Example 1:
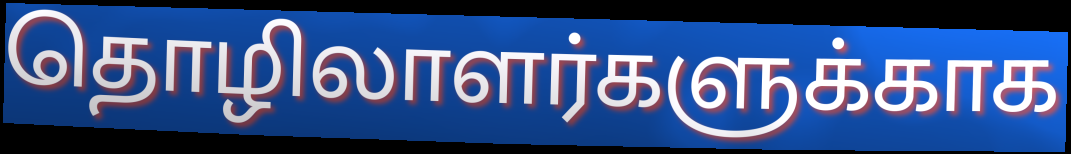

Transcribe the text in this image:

தொழிலாளர்களுக்காக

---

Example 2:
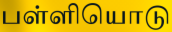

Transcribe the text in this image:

பள்ளியொடு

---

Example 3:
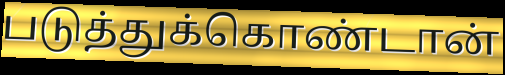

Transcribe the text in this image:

படுத்துக்கொண்டான்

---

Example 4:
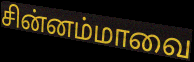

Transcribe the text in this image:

சின்னம்மாவை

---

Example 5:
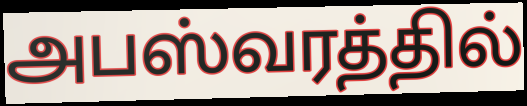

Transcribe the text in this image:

அபஸ்வரத்தில்